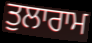
ਤੁਲਾਰਾਮ